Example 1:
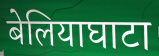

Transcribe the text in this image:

बेलियाघाटा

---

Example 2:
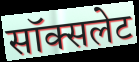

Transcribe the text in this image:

सॉक्सलेट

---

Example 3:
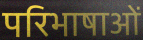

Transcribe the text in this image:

परिभाषाओं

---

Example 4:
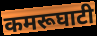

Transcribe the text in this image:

कमरूघाटी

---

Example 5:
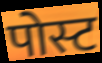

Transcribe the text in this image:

पोस्‍ट